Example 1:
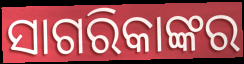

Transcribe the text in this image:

ସାଗରିକାଙ୍କର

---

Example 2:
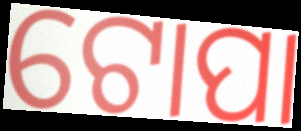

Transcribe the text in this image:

ଟୋପା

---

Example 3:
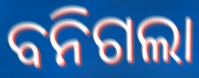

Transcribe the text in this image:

ବନିଗଲା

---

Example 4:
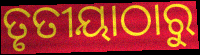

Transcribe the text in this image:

ତୃତୀୟାଠାରୁ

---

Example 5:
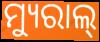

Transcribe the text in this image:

ମ୍ୟୁରାଲ୍